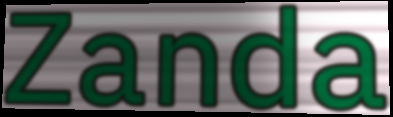
Zanda